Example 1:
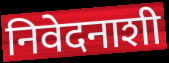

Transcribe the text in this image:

निवेदनाशी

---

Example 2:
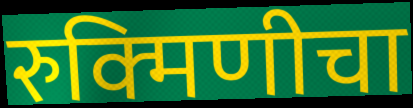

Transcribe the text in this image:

रुक्मिणीचा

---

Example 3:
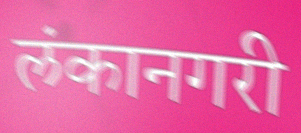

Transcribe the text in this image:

लंकानगरी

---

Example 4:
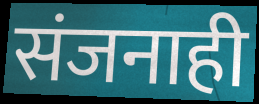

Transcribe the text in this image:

संजनाही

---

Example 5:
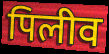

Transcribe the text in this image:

पिलीव